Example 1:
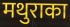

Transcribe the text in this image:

मथुराका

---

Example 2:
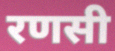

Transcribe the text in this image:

रणसी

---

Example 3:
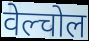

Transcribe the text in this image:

वेल्चोल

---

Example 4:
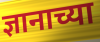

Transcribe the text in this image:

ज्ञानाच्या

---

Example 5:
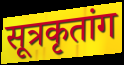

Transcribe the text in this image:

सूत्रकृतांग